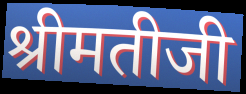
श्रीमतीजी